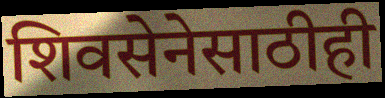
शिवसेनेसाठीही